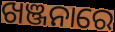
ଖଞ୍ଜନାରେ